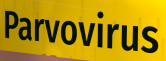
Parvovirus